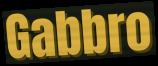
Gabbro